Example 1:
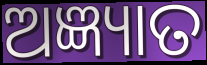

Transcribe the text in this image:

ଅଜ୍ଞ୍ୟାତ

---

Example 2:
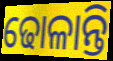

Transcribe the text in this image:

ଢୋଳାନ୍ତି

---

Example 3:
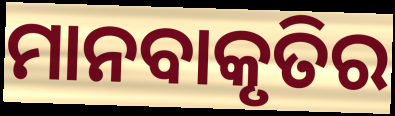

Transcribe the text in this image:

ମାନବାକୃତିର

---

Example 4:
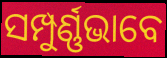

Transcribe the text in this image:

ସମ୍ପୁର୍ଣ୍ଣଭାବେ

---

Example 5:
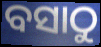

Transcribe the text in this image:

ବସାଠୁ